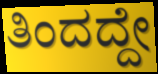
ತಿಂದದ್ದೇ